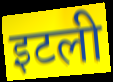
इटली